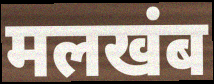
मलखंब